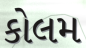
કોલમ